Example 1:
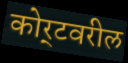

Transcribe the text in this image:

कोर्टवरील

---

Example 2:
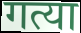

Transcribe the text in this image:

गत्या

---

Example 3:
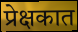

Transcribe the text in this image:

प्रेक्षकात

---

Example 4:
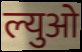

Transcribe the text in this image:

ल्युओ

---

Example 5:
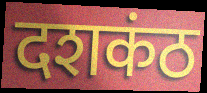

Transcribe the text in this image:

दशकंठ